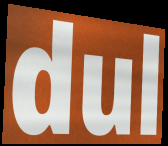
dul